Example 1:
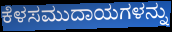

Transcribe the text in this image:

ಕೆಳಸಮುದಾಯಗಳನ್ನು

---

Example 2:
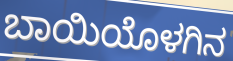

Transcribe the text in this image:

ಬಾಯಿಯೊಳಗಿನ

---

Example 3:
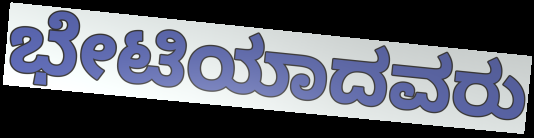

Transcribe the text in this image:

ಭೇಟಿಯಾದವರು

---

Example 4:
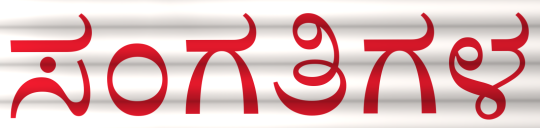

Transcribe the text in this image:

ಸಂಗತಿಗಳ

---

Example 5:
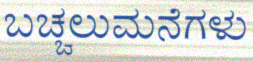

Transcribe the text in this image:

ಬಚ್ಚಲುಮನೆಗಳು